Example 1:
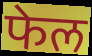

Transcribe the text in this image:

फेल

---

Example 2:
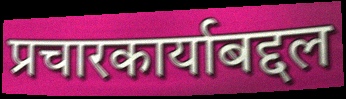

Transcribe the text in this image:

प्रचारकार्याबद्दल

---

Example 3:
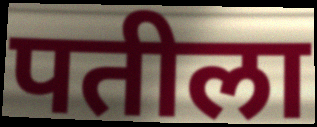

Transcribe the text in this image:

पतीला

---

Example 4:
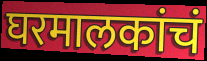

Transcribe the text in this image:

घरमालकांचं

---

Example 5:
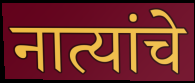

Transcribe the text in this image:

नात्यांचे